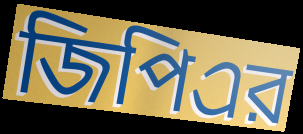
জিপিএর